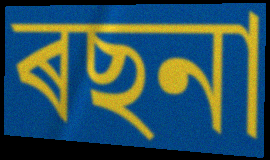
ৰছনা